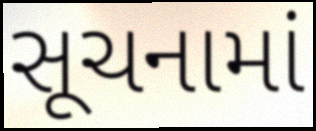
સૂચનામાં